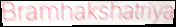
Bramhakshatriya